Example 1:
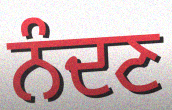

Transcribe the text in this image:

ਨੰਦਣ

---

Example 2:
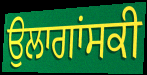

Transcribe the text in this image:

ਉਲਾਗਾਂਸਕੀ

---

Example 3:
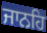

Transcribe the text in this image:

ਜਾਨਹਿ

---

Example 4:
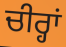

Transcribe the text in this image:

ਚੀਰ੍ਹਾਂ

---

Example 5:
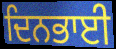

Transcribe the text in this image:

ਦਿਨਭਾਈ